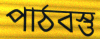
পাঠবস্তু